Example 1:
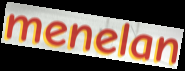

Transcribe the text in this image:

menelan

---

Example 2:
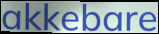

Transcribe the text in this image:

akkebare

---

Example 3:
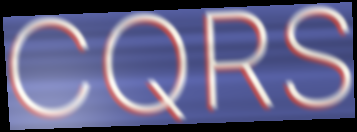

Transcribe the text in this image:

CQRS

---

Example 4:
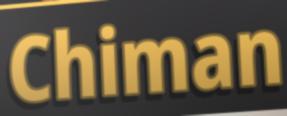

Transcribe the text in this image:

Chiman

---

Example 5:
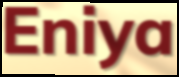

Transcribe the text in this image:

Eniya